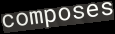
composes